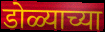
डोळ्याच्या